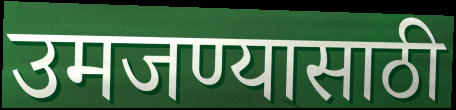
उमजण्यासाठी